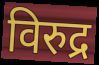
विरुद्र